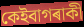
কেইবাগৰাকী